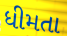
ધીમતા